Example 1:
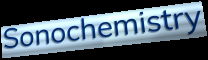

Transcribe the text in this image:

Sonochemistry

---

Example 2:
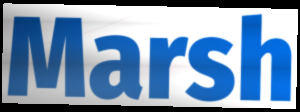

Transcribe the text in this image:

Marsh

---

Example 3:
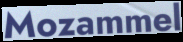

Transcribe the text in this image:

Mozammel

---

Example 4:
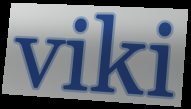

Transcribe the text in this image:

viki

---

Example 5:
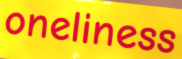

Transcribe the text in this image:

oneliness